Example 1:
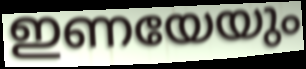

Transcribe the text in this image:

ഇണയേയും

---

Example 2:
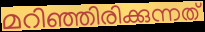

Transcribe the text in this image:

മറിഞ്ഞിരിക്കുന്നത്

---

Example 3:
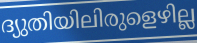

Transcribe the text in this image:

ദ്യുതിയിലിരുളെഴില്ല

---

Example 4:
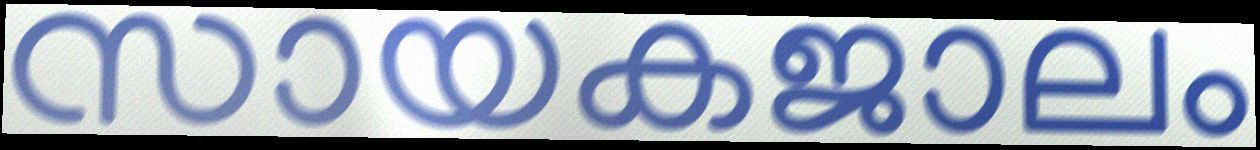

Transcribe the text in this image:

സായകജാലം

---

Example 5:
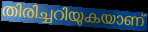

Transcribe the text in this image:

തിരിച്ചറിയുകയാണ്